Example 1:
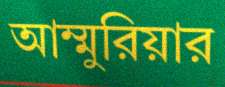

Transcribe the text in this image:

আম্মুরিয়ার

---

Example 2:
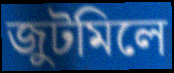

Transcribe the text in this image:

জুটমিলে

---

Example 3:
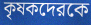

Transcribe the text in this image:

কৃষকদেরকে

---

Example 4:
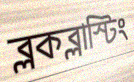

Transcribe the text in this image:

ব্লকব্লাস্টিং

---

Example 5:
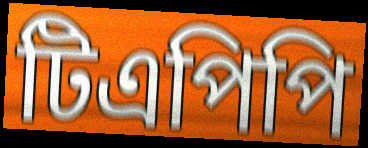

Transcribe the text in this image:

টিএপিপি